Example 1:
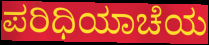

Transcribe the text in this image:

ಪರಿಧಿಯಾಚೆಯ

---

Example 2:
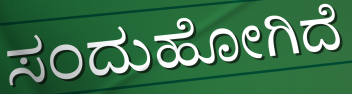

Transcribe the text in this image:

ಸಂದುಹೋಗಿದೆ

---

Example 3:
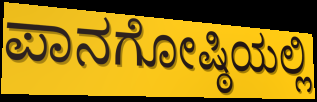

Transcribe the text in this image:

ಪಾನಗೋಷ್ಠಿಯಲ್ಲಿ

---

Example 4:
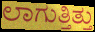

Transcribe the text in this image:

ಲಾಗುತ್ತಿತ್ತು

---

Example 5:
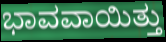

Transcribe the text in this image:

ಭಾವವಾಯಿತ್ತು